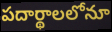
పదార్థాలలోనూ